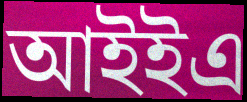
আইইএ